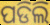
ପଡିଲି